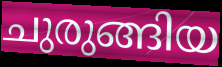
ചുരുങ്ങിയ